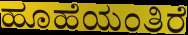
ಹೂಹೆಯಂತಿರೆ